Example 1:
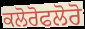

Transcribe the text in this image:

ਕਲੋਰੋਫਲੋਰੋ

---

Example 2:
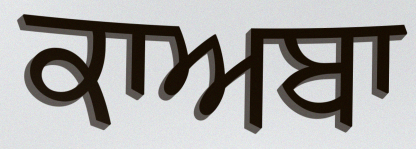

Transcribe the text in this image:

ਕਾਅਬਾ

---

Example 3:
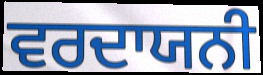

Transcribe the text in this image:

ਵਰਦਾਯਨੀ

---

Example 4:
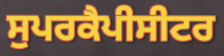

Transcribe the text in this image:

ਸੁਪਰਕੈਪੀਸੀਟਰ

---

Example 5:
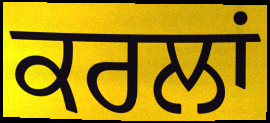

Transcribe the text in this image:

ਕਰਲਾਂ